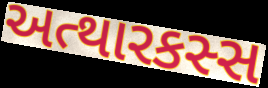
અત્થારકસ્સ